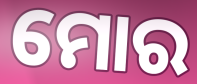
ମୋର